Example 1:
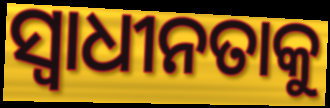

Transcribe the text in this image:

ସ୍ଵାଧୀନତାକୁ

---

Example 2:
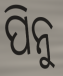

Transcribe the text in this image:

ପିନୁ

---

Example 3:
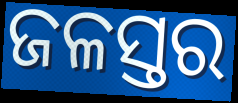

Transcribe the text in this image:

ଜଳସ୍ତର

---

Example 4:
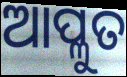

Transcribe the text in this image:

ଆପ୍ଳୁତ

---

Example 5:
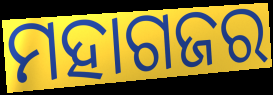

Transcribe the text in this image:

ମହାଗଜର